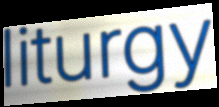
liturgy